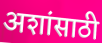
अशांसाठी